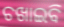
ଚଖାଇବି